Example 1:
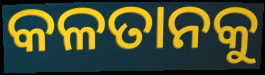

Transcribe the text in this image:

କଳତାନକୁ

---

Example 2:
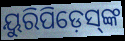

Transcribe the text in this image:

ୟୁରିପିଡ଼େସ୍‌ଙ୍କ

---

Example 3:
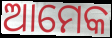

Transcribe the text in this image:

ଆମେକ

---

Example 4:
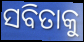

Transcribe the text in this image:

ସବିତାକୁ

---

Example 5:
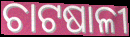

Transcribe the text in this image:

ଚାଟଷାଳୀ